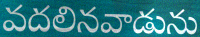
వదలినవాడును